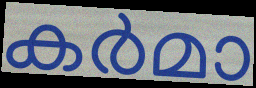
കർമാ